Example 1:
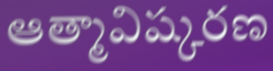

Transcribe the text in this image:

ఆత్మావిష్కరణ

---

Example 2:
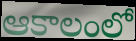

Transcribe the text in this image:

ఆకాలంలో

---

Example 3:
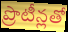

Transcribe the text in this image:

ప్రొటీన్లతో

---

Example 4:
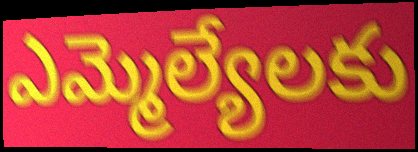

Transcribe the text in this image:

ఎమ్మెల్యేలకు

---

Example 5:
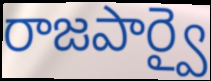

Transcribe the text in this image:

రాజపార్వై